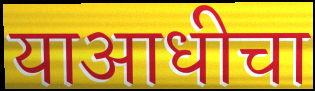
याआधीचा